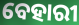
ବେହାରୀ